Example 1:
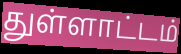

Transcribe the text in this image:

துள்ளாட்டம்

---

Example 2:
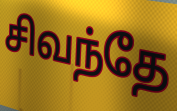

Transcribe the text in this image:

சிவந்தே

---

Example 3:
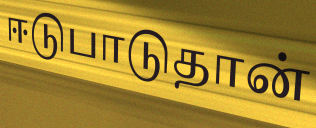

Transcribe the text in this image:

ஈடுபாடுதான்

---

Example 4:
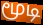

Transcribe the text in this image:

மூடி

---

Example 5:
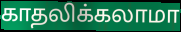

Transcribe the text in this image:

காதலிக்கலாமா